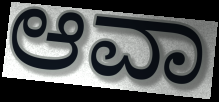
ಆವಾ